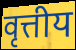
वृत्तीय